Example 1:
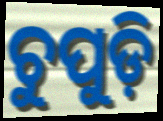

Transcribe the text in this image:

ଚୁପୁଡ଼ି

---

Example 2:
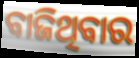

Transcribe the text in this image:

ବାଜିଥିବାର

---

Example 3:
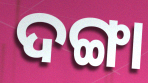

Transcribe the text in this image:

ଦଙ୍ଗା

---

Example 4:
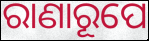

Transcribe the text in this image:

ରାଣାରୂପେ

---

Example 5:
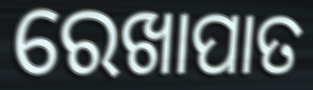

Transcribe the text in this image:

ରେଖାପାତ